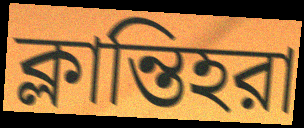
ক্লান্তিহরা